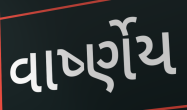
વાર્ષ્ણેય